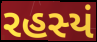
રહસ્યં